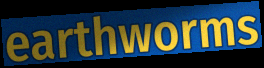
earthworms